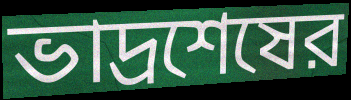
ভাদ্রশেষের